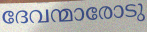
ദേവന്മാരോടു